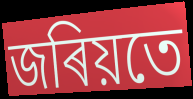
জৰিয়তে